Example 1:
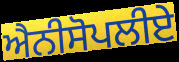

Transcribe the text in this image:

ਐਨੀਸੋਪਲੀਏ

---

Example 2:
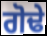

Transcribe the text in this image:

ਗੋਢੇ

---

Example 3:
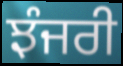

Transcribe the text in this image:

ਝੰਜਰੀ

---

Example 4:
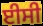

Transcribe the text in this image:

ਈਸੀ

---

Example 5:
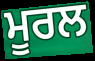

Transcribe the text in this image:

ਮੂਰਲ